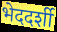
भेददर्शी